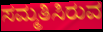
ಸಮ್ಮತಿಸಿರುವ